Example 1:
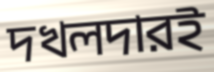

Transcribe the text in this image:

দখলদারই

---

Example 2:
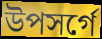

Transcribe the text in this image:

উপসর্গে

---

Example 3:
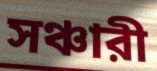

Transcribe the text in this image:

সঞ্চারী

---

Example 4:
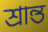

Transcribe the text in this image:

শ্রান্ত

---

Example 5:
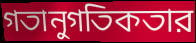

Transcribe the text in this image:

গতানুগতিকতার